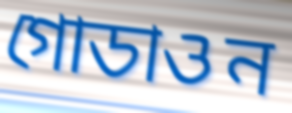
গোডাওন